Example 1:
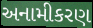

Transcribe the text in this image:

અનામીકરણ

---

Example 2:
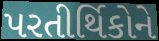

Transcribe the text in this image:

પરતીર્થિકોને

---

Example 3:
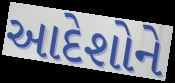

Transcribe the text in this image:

આદેશોને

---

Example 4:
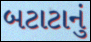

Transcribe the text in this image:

બટાટાનું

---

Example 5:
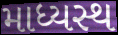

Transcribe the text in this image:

માધ્યસ્થ